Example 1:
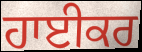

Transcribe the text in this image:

ਹਾਈਕਰ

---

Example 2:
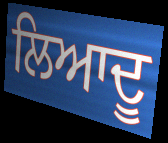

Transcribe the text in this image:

ਲਿਆਦੂ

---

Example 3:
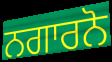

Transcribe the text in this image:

ਨਗਾਰਨੋ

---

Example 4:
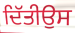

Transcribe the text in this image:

ਦਿੱਤੀਉਸ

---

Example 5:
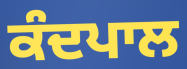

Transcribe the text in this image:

ਕੰਦਪਾਲ